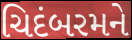
ચિદંબરમને